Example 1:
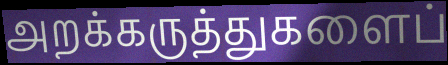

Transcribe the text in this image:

அறக்கருத்துகளைப்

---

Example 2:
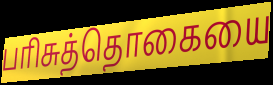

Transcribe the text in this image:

பரிசுத்தொகையை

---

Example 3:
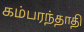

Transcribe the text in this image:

கம்பரந்தாதி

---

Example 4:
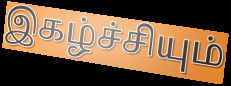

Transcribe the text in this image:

இகழ்ச்சியும்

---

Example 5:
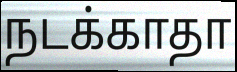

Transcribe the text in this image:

நடக்காதா